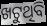
ଖଟୁଥିବି